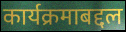
कार्यक्रमाबद्दल